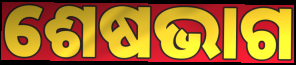
ଶେଷଭାଗ